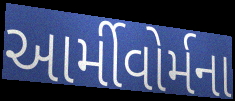
આર્મીવોર્મના